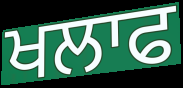
ਖਲਾਫ